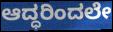
ಆದ್ಧರಿಂದಲೇ